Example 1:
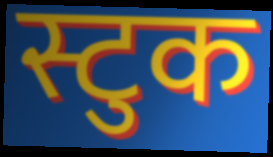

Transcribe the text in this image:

स्टुक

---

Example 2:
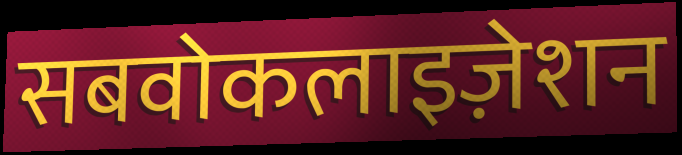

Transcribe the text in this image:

सबवोकलाइज़ेशन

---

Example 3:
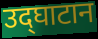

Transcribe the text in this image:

उद्घाटान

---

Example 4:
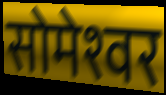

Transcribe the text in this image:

सोमेश्वर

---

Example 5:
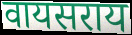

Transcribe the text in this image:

वायसराय